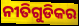
ନୀତିଗୁଡିକର